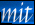
mit